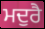
ਮਦੁਰੈ